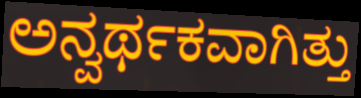
ಅನ್ವರ್ಥಕವಾಗಿತ್ತು